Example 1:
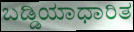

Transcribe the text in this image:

ಬಡ್ಡಿಯಾಧಾರಿತ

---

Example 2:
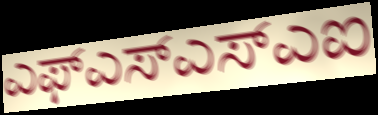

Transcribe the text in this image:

ಎಫ್ಎಸ್ಎಸ್ಎಐ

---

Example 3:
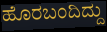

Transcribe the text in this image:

ಹೊರಬಂದಿದ್ದು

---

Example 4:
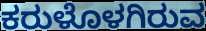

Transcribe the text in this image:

ಕರುಳೊಳಗಿರುವ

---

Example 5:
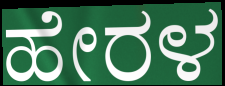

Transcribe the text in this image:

ಹೇರಳ